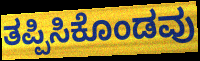
ತಪ್ಪಿಸಿಕೊಂಡವು